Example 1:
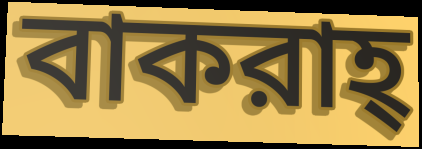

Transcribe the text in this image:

বাকরাহ্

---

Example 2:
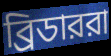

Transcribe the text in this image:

ব্রিডাররা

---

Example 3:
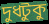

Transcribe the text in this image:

দুধটুকু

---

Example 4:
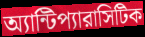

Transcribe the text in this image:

অ্যান্টিপ্যারাসিটিক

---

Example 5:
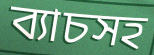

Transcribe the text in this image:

ব্যাচসহ